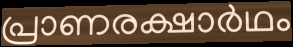
പ്രാണരക്ഷാർഥം